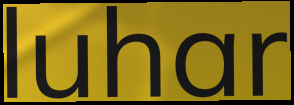
luhar